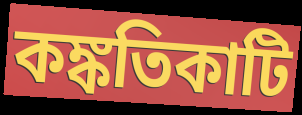
কঙ্কতিকাটি